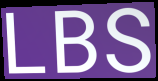
LBS